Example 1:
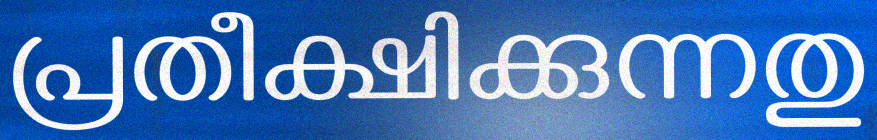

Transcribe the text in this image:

പ്രതീക്ഷിക്കുന്നതു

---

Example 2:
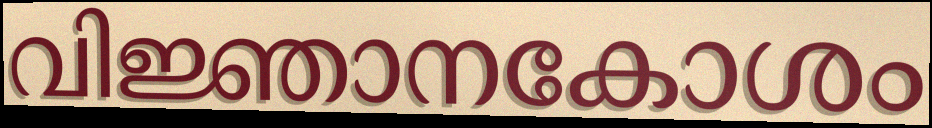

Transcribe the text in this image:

വിജ്ഞാനകോശം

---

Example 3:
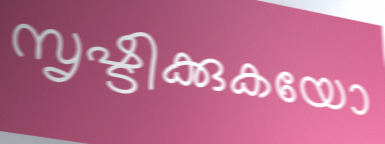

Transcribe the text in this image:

സൃഷ്ടിക്കുകയോ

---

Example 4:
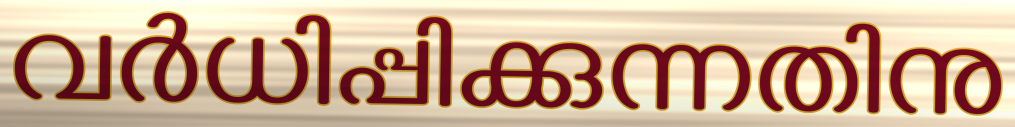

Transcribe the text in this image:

വർധിപ്പിക്കുന്നതിനു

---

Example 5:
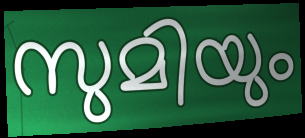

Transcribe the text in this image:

സുമിയും